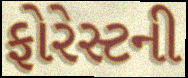
ફોરેસ્ટની